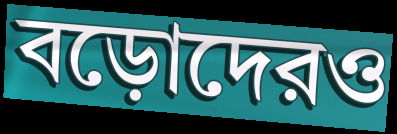
বড়োদেরও